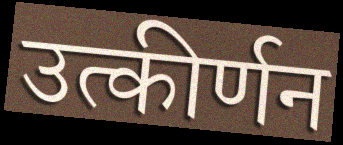
उत्कीर्णन